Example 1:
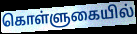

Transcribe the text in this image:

கொள்ளுகையில்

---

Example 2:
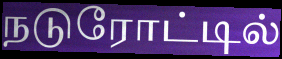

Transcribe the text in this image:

நடுரோட்டில்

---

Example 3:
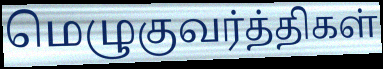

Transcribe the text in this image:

மெழுகுவர்த்திகள்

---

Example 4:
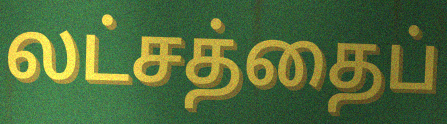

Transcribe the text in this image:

லட்சத்தைப்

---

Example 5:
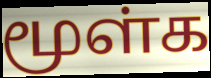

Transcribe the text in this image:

மூள்க